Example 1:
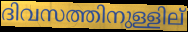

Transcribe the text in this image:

ദിവസത്തിനുള്ളില്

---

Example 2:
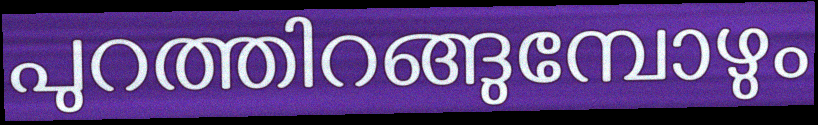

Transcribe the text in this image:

പുറത്തിറങ്ങുമ്പോഴും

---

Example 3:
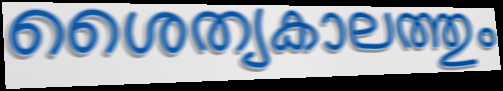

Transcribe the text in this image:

ശൈത്യകാലത്തും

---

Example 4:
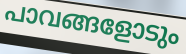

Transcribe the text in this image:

പാവങ്ങളോടും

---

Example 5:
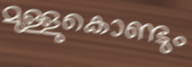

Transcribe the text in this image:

മുള്ളുകൊണ്ടും